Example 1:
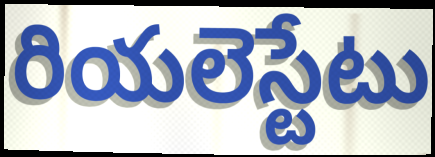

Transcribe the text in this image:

రియలెస్టేటు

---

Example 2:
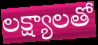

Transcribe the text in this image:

లక్ష్యాలతో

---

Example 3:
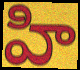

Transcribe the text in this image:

హి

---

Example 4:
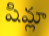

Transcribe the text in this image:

షిమ్లా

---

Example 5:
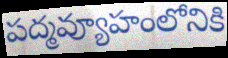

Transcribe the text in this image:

పద్మవ్యూహంలోనికి